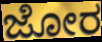
ಜೋರ